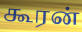
கூரன்